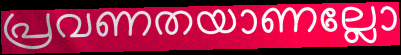
പ്രവണതയാണല്ലോ